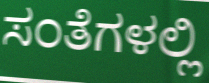
ಸಂತೆಗಳಲ್ಲಿ